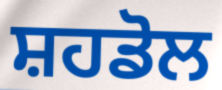
ਸ਼ਹਡੋਲ